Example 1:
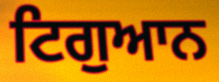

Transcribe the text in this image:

ਟਿਗੁਆਨ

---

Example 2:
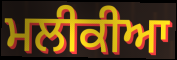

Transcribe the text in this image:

ਮਲੀਕੀਆ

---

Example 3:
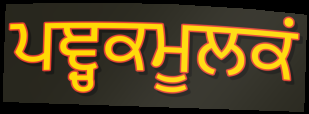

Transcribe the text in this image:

ਪਞ੍ਚਕਮੂਲਕਂ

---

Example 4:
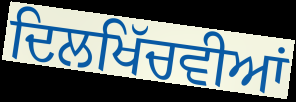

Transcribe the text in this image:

ਦਿਲਖਿੱਚਵੀਆਂ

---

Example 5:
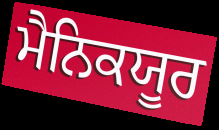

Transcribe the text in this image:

ਮੈਨਿਕਯੂਰ